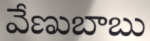
వేణుబాబు